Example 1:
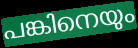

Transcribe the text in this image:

പങ്കിനെയും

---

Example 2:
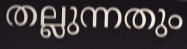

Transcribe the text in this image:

തല്ലുന്നതും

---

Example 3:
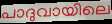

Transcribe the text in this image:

പാദുവായിലെ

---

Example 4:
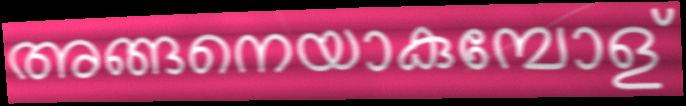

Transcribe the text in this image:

അങ്ങനെയാകുമ്പോള്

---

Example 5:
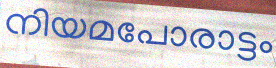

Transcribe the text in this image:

നിയമപോരാട്ടം